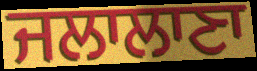
ਜਲਾਲਾਣਾ